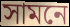
সামনে